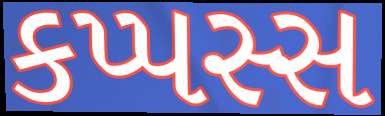
કપ્પસ્સ